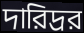
দারিদ্রর